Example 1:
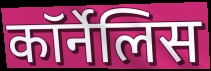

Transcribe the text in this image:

कॉर्नेलिस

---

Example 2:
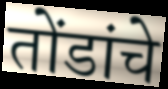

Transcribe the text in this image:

तोंडांचे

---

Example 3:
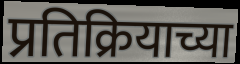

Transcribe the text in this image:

प्रतिक्रियाच्या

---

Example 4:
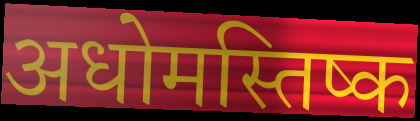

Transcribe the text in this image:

अधोमस्तिष्क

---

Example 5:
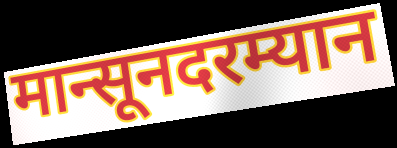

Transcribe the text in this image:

मान्सूनदरम्यान